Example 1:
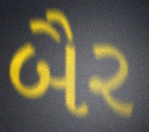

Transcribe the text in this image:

બૈર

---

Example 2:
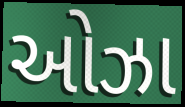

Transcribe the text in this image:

ઓઝા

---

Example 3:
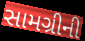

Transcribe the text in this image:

સામગ્રીની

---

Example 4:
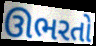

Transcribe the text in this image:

ઊભરતો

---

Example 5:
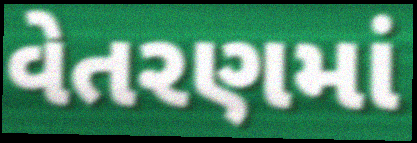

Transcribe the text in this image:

વેતરણમાં